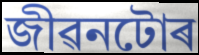
জীৱনটোৰ